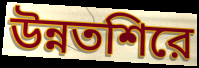
উন্নতশিরে